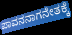
ಪಾವನನಾಗನೇತಕ್ಕೆ